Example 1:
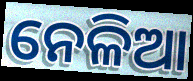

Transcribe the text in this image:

ନେଳିଆ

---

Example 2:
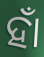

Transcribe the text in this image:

ହାଁ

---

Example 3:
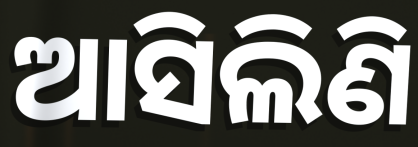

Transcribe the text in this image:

ଆସିଲିଣି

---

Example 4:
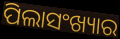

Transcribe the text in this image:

ପିଲାସଂଖ୍ୟାର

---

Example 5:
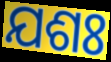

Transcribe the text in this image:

ଯଶଃ